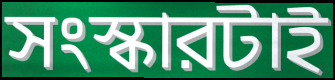
সংস্কারটাই